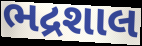
ભદ્રશાલ